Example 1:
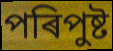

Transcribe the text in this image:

পৰিপুষ্ট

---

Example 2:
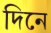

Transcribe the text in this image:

দিনে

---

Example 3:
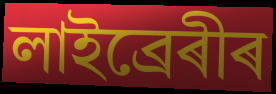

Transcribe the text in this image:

লাইব্ৰেৰীৰ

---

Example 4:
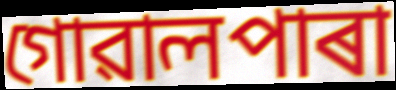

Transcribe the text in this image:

গোৱালপাৰা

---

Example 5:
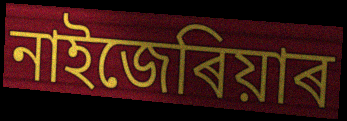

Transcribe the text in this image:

নাইজেৰিয়াৰ